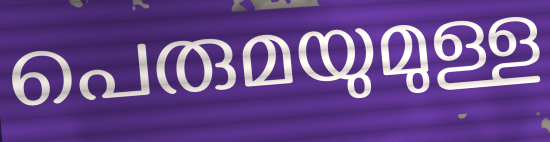
പെരുമയുമുള്ള